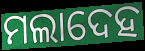
ମଲାଦେହ